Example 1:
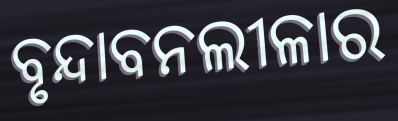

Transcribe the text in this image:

ବୃନ୍ଦାବନଲୀଳାର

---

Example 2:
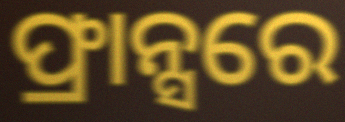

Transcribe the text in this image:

ଫ୍ରାନ୍ସରେ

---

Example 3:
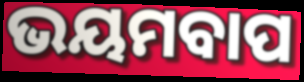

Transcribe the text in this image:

ଭୟମବାପ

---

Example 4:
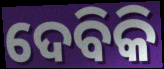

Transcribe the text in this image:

ଦେବିକି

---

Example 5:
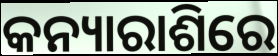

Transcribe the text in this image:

କନ୍ୟାରାଶିରେ